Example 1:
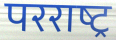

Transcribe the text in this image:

परराष्ट्र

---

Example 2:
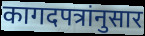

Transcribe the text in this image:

कागदपत्रांनुसार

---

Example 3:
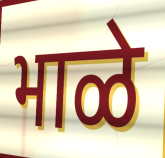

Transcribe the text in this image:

भाळे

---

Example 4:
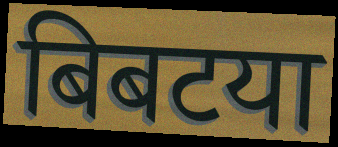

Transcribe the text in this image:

बिबटया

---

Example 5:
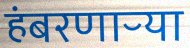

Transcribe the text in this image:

हंबरणाऱ्या